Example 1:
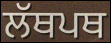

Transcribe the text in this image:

ਲੱਥਪਥ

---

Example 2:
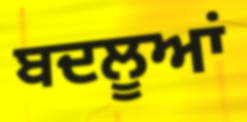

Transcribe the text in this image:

ਬਦਲੂਆਂ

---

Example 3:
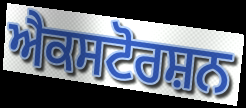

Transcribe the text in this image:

ਐਕਸਟੋਰਸ਼ਨ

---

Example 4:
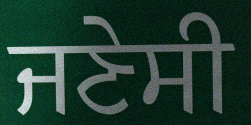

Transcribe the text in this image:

ਜਣੇਸੀ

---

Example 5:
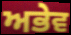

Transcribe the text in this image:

ਅਭੇਵ